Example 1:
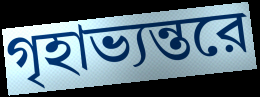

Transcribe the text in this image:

গৃহাভ্যন্তরে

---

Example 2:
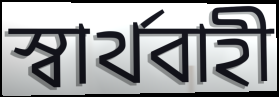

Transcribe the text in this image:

স্বার্থবাহী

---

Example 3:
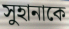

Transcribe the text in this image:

সুহানাকে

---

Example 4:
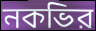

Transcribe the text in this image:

নকভির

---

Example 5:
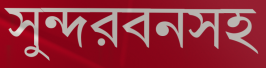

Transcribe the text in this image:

সুন্দরবনসহ